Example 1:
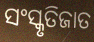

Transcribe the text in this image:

ସଂସ୍କୃତିଜାତ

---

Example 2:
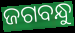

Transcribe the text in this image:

ଜଗବନ୍ଧୁ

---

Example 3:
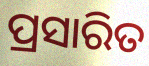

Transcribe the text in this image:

ପ୍ରସାରିତ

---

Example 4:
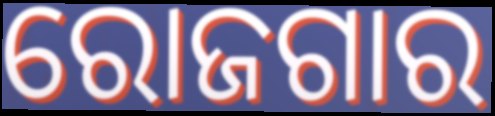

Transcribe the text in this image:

ରୋଜଗାର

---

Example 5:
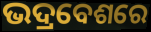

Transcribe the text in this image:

ଭଦ୍ରବେଶରେ